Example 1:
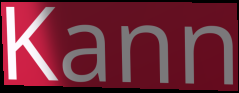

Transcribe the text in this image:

Kann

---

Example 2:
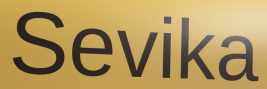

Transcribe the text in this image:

Sevika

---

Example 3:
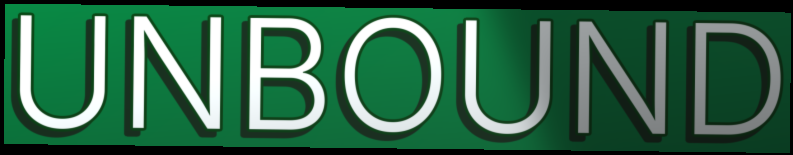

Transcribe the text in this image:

UNBOUND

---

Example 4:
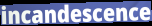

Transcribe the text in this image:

incandescence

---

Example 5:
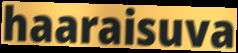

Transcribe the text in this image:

haaraisuva